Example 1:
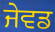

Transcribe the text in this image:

ਜੇਵਡ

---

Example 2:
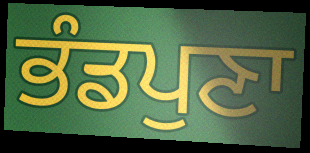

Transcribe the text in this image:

ਭੰਡਪੁਣਾ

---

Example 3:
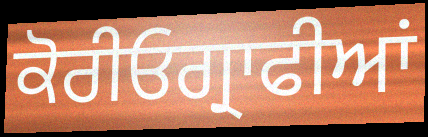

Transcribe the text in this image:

ਕੋਰੀਓਗ੍ਰਾਫੀਆਂ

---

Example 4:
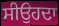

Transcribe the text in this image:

ਸੀਉਹਦਾ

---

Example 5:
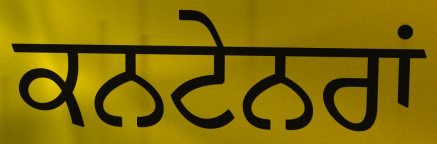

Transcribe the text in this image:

ਕਨਟੇਨਰਾਂ